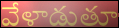
వేళాడుతూ